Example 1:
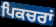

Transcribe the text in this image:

ਪਿਕਚਰਾਂ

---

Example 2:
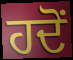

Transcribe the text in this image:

ਹਦੋਂ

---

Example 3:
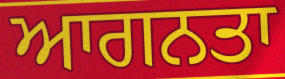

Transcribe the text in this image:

ਆਗਨਤਾ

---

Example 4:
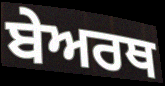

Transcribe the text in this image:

ਬੇਅਰਥ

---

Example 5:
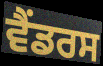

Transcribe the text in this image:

ਵੈਂਡਰਸ